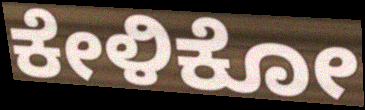
ಕೇಳಿಕೋ